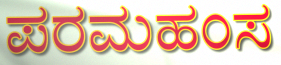
ಪರಮಹಂಸ